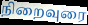
நிறைவுரை